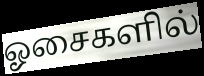
ஓசைகளில்